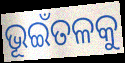
ଭୂଇଁତଳକୁ